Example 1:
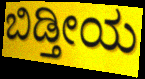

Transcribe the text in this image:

ಬಿಡ್ತೀಯ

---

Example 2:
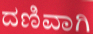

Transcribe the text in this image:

ದಣಿವಾಗಿ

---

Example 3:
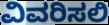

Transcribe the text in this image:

ವಿವರಿಸಲಿ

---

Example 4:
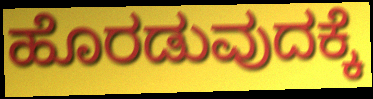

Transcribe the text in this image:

ಹೊರಡುವುದಕ್ಕೆ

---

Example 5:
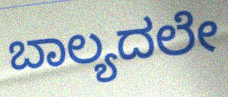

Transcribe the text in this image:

ಬಾಲ್ಯದಲೇ